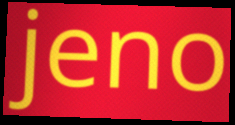
jeno